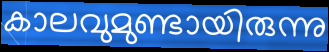
കാലവുമുണ്ടായിരുന്നു